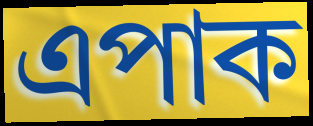
এপাক